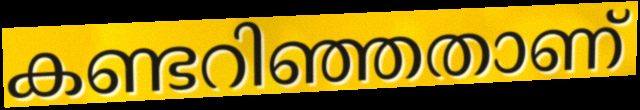
കണ്ടറിഞ്ഞതാണ്